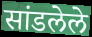
सांडलेले